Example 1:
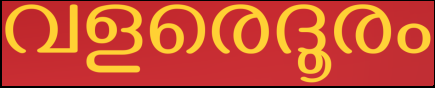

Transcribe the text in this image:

വളരെദൂരം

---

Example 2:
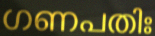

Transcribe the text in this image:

ഗണപതിഃ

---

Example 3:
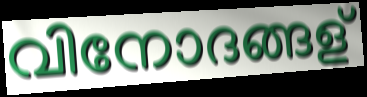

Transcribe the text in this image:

വിനോദങ്ങള്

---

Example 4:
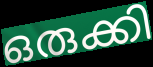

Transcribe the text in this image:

ഒരുക്കി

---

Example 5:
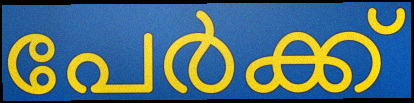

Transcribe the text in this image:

പേർക്ക്